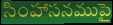
సింహాసనముపై